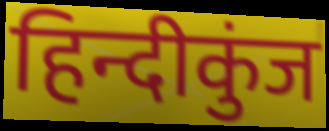
हिन्दीकुंज